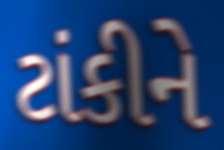
ટાંકીને